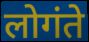
लोगंते